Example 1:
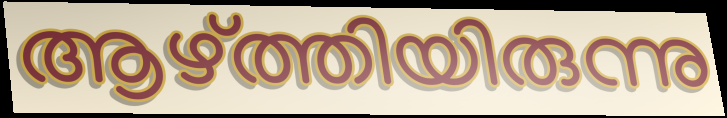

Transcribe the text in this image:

ആഴ്ത്തിയിരുന്നു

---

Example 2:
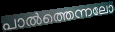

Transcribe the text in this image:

പാൽത്തെന്നലോ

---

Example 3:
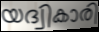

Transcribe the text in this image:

യദ്വികാരി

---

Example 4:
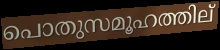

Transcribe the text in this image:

പൊതുസമൂഹത്തില്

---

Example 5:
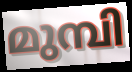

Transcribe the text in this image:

മുമ്പി